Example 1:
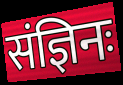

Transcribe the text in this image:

संज्ञिनः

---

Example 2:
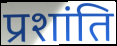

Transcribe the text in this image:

प्रशांति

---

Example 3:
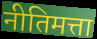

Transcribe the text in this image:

नीतिमत्ता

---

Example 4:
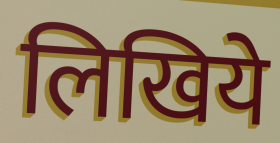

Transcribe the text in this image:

लिखिये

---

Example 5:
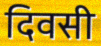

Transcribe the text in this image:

दिवसी